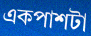
একপাশটা